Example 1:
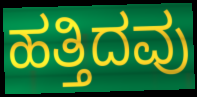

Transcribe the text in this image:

ಹತ್ತಿದವು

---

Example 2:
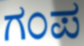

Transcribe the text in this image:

ಗಂಪ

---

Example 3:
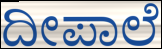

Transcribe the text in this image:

ದೀಪಾಲೆ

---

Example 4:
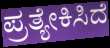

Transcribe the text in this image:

ಪ್ರತ್ಯೇಕಿಸಿದೆ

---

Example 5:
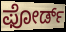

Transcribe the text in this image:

ಫೋರ್ಡ್